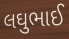
લઘુભાઈ